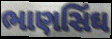
ભાણસિંઘ